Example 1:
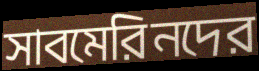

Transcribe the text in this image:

সাবমেরিনদের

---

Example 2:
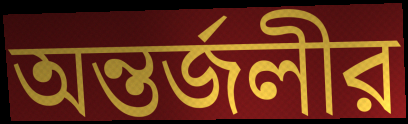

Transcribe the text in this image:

অন্তর্জলীর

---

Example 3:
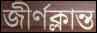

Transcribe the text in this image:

জীর্ণক্লান্ত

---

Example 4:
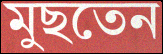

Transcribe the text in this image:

মুছতেন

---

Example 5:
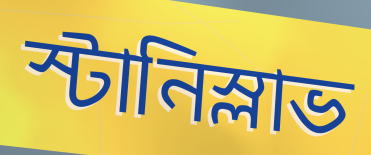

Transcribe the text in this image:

স্টানিস্লাভ